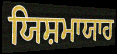
ਯਿਸ਼ਮਾਯਾਹ